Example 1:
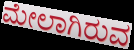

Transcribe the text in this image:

ಮೇಲಾಗಿರುವ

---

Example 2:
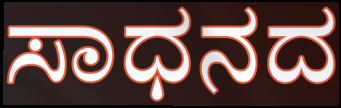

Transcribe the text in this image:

ಸಾಧನದ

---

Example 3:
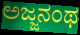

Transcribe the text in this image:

ಅಜ್ಜನಂಥ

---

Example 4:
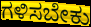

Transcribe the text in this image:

ಗಳಿಸಬೇಕು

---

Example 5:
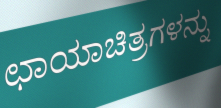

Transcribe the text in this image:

ಛಾಯಾಚಿತ್ರಗಳನ್ನು